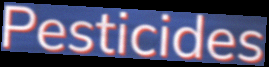
Pesticides